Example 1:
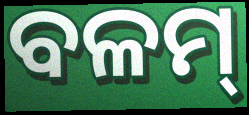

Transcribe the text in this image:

ବଳମ୍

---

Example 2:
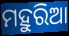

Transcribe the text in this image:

ମହୁରିଆ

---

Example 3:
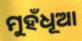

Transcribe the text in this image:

ମୁହଁଧୂଆ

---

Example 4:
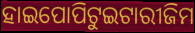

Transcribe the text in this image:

ହାଇପୋପିଟୁଇଟାରୀଜିମ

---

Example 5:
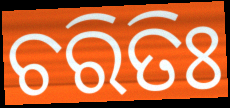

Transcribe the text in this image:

ଚରିତିଃ